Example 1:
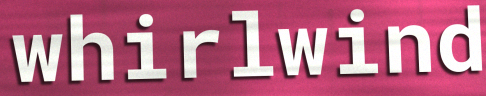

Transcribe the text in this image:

whirlwind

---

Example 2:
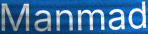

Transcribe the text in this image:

Manmad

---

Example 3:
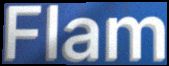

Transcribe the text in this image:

Flam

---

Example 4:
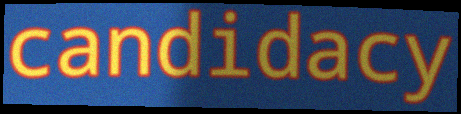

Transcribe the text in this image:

candidacy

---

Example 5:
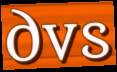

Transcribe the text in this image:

dvs